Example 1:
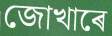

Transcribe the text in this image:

জোখাৰে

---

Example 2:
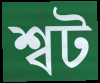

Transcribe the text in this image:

শ্বট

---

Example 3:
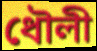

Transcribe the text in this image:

ধৌলী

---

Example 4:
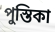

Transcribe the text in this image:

পুস্তিকা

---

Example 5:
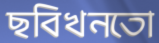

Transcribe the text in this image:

ছবিখনতো